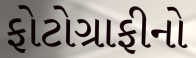
ફોટોગ્રાફીનો